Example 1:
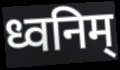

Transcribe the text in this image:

ध्वनिम्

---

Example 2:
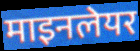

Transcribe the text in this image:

माइनलेयर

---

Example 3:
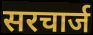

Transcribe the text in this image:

सरचार्ज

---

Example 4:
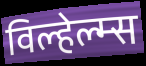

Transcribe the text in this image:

विल्हेल्म्स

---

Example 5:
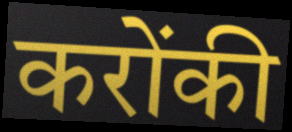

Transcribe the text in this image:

करोंकी